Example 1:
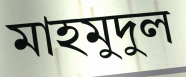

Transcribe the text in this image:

মাহমুদুল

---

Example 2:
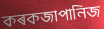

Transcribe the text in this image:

কৰকজাপানিজ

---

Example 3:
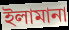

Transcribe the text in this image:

ইলামানা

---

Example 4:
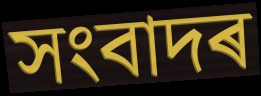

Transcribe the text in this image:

সংবাদৰ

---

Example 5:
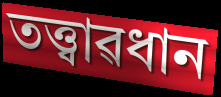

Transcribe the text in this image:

তত্ত্বাৱধান